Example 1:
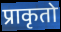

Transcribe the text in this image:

प्राकृतो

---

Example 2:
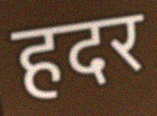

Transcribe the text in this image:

हदर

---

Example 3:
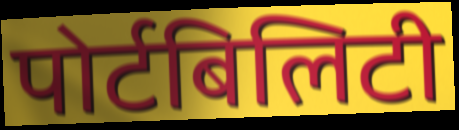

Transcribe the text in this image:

पोर्टबिलिटी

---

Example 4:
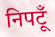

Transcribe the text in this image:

निपटूँ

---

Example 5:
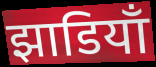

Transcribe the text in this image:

झाडियाँ